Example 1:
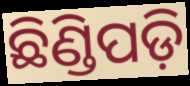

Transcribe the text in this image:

ଛିଣ୍ଡିପଡ଼ି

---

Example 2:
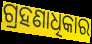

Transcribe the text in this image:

ଗ୍ରହଣାଧିକାର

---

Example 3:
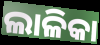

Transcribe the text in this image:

ଲାଳିକା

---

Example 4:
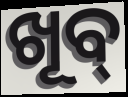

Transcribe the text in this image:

ଖୂବ୍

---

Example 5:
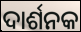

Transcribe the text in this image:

ଦାର୍ଶନକ